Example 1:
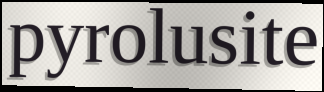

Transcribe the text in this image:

pyrolusite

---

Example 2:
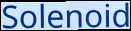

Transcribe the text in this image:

Solenoid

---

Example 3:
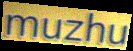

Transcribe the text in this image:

muzhu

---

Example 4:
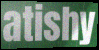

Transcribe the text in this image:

atishy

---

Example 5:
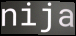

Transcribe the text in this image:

nija